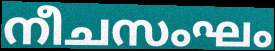
നീചസംഘം